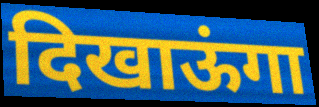
दिखाऊंगा